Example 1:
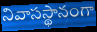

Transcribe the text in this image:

నివాసస్థానంగా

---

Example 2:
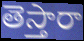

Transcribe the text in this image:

తెస్తారా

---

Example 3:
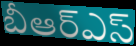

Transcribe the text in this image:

బీఆర్ఎస్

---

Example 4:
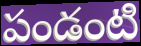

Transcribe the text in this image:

పండంటి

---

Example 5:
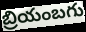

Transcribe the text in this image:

బ్రియంబగు